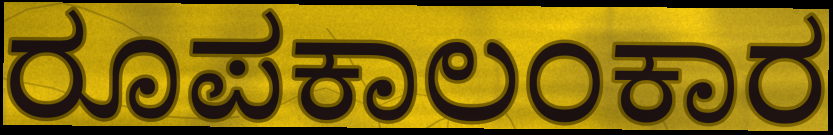
ರೂಪಕಾಲಂಕಾರ